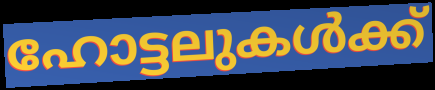
ഹോട്ടലുകൾക്ക്